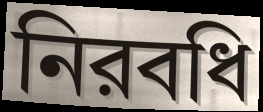
নিরবধি